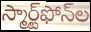
స్మార్ట్‌ఫోన్‌ల